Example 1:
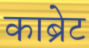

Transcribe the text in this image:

काब्रेट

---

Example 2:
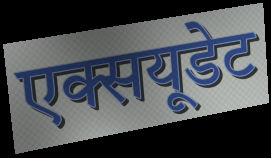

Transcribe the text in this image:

एक्सयूडेट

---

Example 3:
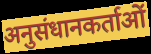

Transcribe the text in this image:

अनुसंधानकर्ताओं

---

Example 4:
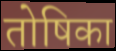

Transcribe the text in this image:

तोषिका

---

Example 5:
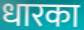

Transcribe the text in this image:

धारका